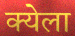
क्येला